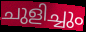
ചുളിച്ചും